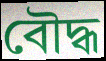
বৌদ্ধ